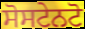
ਸੋਸਟੇਨਟੋ